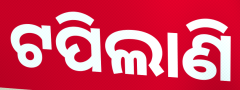
ଟପିଲାଣି